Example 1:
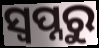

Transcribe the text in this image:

ସ୍ବପ୍ନରୁ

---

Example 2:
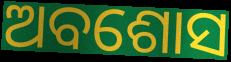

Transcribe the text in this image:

ଅବଶୋସ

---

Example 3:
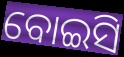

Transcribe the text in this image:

ବୋଇସି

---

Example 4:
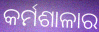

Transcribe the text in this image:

କର୍ମଶାଳାର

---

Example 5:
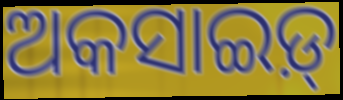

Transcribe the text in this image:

ଅକସାଇଡ଼୍